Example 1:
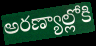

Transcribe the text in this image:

అరణ్యాల్లోకి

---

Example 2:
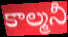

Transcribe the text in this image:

కాల్మనీ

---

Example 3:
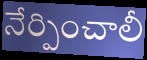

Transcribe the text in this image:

నేర్పించాలీ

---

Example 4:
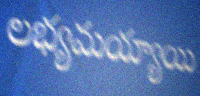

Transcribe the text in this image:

లభ్యమయ్యాయి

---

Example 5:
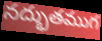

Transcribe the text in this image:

నద్భుతముగ